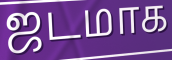
ஜடமாக